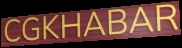
CGKHABAR